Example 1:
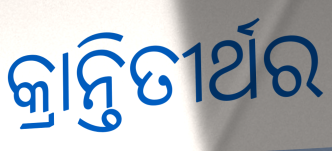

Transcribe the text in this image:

କ୍ରାନ୍ତିତୀର୍ଥର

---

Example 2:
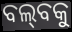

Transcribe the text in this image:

ବଲ୍‌ବକୁ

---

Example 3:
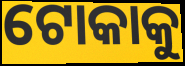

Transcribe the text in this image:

ଟୋକାକୁ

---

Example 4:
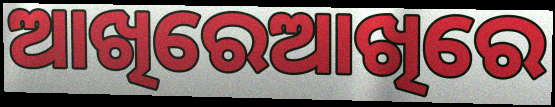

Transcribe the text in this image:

ଆଖିରେଆଖିରେ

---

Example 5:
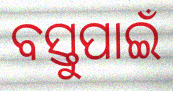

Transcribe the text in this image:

ବସ୍ତୁପାଇଁ